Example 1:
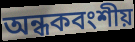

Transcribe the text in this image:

অন্ধকবংশীয়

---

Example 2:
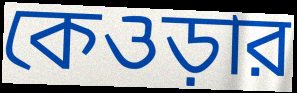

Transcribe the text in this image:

কেওড়ার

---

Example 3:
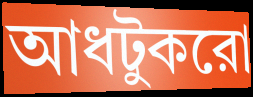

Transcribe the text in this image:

আধটুকরো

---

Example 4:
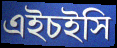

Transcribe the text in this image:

এইচইসি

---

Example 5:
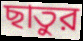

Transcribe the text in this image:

ছাতুর